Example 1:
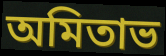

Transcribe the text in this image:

অমিতাভ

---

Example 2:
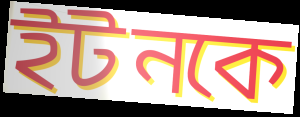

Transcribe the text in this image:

ইটনকে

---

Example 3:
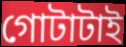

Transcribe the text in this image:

গোটাটাই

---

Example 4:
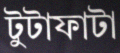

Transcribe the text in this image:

টুটাফাটা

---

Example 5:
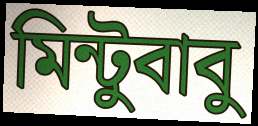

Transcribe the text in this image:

মিন্টুবাবু